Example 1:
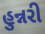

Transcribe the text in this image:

હુન્નરી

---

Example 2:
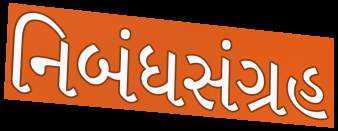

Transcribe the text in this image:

નિબંધસંગ્રહ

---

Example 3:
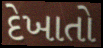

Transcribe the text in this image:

દેખાતો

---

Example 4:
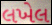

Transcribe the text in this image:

લખેલ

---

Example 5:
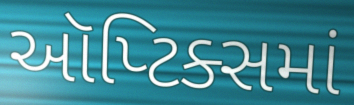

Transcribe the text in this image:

ઑપ્ટિક્સમાં